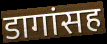
डागांसह